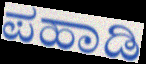
ಪಹಾಡಿ